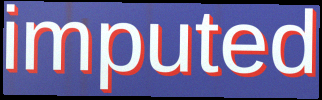
imputed